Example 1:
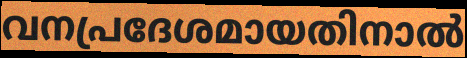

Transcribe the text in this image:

വനപ്രദേശമായതിനാൽ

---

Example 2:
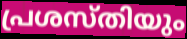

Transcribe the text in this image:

പ്രശസ്തിയും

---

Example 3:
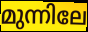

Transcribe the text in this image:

മുന്നിലേ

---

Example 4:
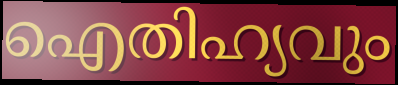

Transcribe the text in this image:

ഐതിഹ്യവും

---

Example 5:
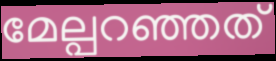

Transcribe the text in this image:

മേല്പറഞ്ഞത്